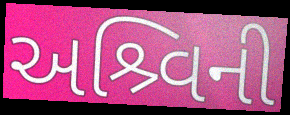
અશ્ર્વિની